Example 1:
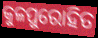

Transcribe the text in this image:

କୁଳପୁରୋହିତ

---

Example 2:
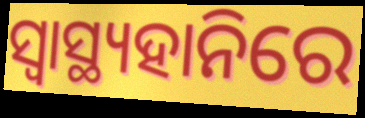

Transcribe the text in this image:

ସ୍ୱାସ୍ଥ୍ୟହାନିରେ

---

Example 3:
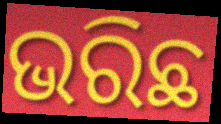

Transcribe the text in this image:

ଭରିଛ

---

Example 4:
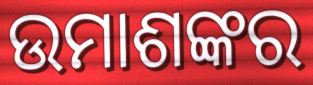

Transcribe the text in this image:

ଉମାଶଙ୍କର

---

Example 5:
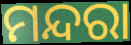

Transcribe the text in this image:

ମନ୍ଦରା